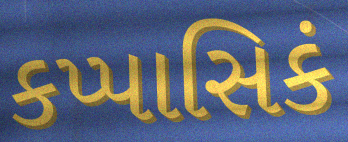
કપ્પાસિકં